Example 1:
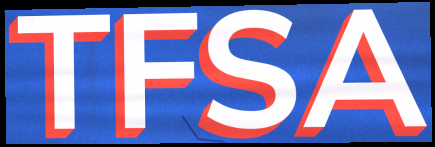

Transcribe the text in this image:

TFSA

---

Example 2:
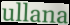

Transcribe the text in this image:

ullana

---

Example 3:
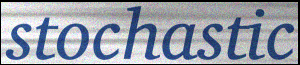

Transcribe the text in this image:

stochastic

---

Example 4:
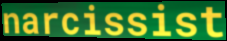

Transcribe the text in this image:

narcissist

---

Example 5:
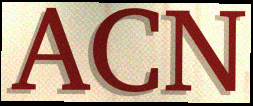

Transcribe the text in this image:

ACN